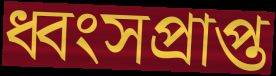
ধ্বংসপ্ৰাপ্ত